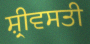
ਸ਼੍ਰੀਵਸਤੀ